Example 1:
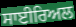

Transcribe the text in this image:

ਸਾਈਰਿਅਲ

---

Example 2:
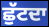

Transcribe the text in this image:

ਛੁੱਟਦਾ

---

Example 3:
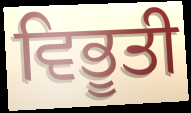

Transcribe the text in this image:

ਵਿਭੂਤੀ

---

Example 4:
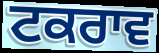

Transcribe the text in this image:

ਟਕਰਾਵ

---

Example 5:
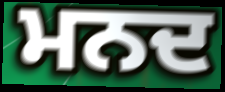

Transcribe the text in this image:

ਮਨਦ